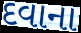
દવાના